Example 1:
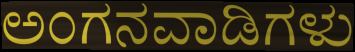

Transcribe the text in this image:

ಅಂಗನವಾಡಿಗಳು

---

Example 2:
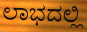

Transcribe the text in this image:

ಲಾಭದಲ್ಲಿ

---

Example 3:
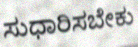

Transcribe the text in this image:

ಸುಧಾರಿಸಬೇಕು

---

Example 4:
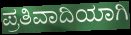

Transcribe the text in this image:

ಪ್ರತಿವಾದಿಯಾಗಿ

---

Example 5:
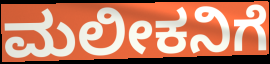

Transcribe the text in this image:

ಮಲೀಕನಿಗೆ